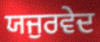
ਯਜੁਰਵੇਦ